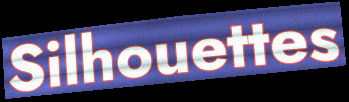
Silhouettes